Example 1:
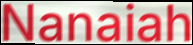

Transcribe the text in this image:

Nanaiah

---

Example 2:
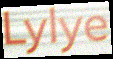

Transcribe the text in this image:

Lylye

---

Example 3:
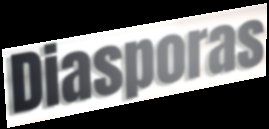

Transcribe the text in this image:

Diasporas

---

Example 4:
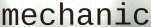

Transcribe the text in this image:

mechanic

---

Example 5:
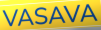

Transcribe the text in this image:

VASAVA